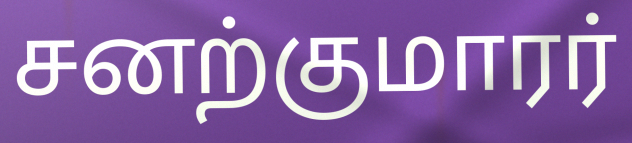
சனற்குமாரர்